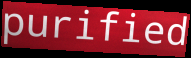
purified